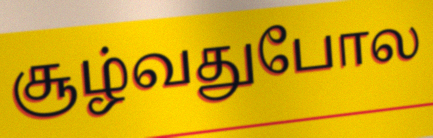
சூழ்வதுபோல